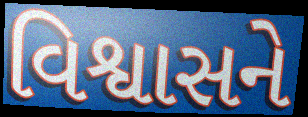
વિશ્વાસને